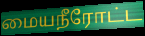
மையநீரோட்ட